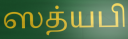
ஸத்யபி